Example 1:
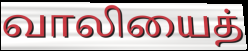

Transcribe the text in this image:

வாலியைத்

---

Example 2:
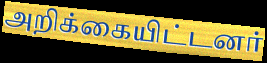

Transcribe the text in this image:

அறிக்கையிட்டனர்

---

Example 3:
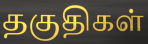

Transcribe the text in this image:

தகுதிகள்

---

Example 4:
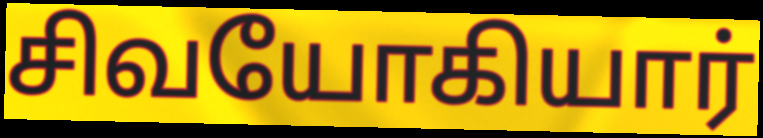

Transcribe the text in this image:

சிவயோகியார்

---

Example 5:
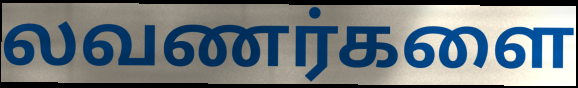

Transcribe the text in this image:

லவணர்களை